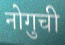
नोगुची